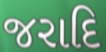
જરાદિ